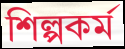
শিল্পকর্ম